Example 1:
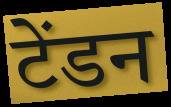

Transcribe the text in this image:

टेंडन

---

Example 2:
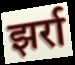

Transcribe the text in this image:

झर्रा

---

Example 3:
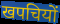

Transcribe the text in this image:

खपचियों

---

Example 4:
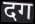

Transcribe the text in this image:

दग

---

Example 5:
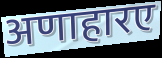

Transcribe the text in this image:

अणाहारए